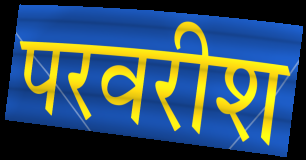
परवरीश